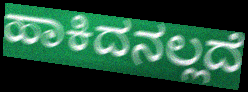
ಹಾಕಿದನಲ್ಲದೆ